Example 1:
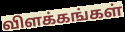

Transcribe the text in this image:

விளக்கங்கள்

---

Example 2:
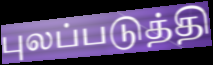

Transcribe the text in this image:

புலப்படுத்தி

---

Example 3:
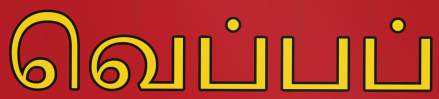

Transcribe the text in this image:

வெப்பப்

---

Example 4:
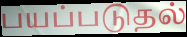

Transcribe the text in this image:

பயப்படுதல்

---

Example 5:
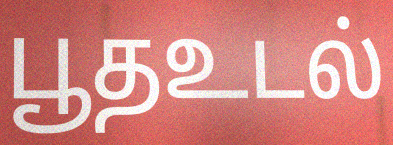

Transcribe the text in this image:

பூதஉடல்